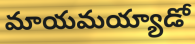
మాయమయ్యాడో